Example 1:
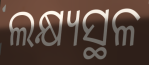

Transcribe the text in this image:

ଲକ୍ଷ୍ୟସ୍ଥଳ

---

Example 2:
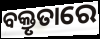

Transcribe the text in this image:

ବକ୍ତୃତାରେ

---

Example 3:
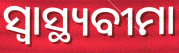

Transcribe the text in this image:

ସ୍ଵାସ୍ଥ୍ୟବୀମା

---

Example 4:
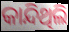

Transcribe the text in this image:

କାନ୍ଦିଥିଲି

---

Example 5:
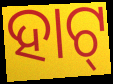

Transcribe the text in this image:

ହାଟ୍